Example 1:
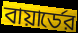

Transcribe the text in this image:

বায়ার্ডের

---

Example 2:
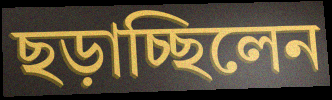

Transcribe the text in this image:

ছড়াচ্ছিলেন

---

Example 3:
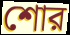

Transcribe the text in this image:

শোর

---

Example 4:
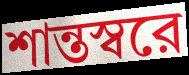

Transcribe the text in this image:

শান্তস্বরে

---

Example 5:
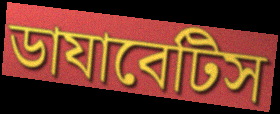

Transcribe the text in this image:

ডাযাবেটিস